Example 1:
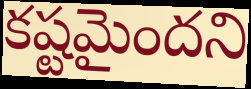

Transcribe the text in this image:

కష్టమైందని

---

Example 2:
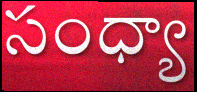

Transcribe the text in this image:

సంధ్యా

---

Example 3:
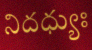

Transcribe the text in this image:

నిదధ్యుః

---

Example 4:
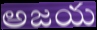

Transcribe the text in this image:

అజయ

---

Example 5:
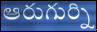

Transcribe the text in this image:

ఆరుగుర్ని